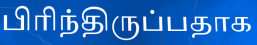
பிரிந்திருப்பதாக